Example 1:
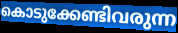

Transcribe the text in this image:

കൊടുക്കേണ്ടിവരുന്ന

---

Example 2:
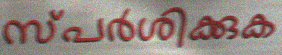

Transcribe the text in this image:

സ്പർശിക്കുക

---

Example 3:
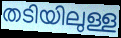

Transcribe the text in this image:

തടിയിലുള്ള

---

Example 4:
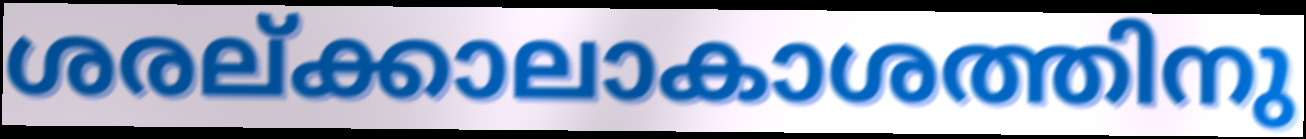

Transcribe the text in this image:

ശരല്ക്കാലാകാശത്തിനു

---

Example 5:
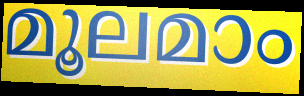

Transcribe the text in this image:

മൂലമാം